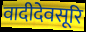
वादीदेवसूरि